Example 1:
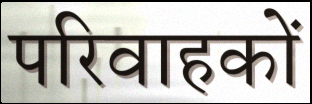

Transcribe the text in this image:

परिवाहकों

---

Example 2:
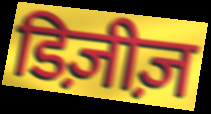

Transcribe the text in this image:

डिज़ीज़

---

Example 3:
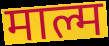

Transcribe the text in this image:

माल्म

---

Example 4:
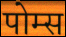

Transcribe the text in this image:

पोम्स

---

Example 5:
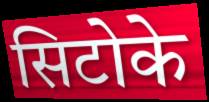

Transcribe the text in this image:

सिटोके